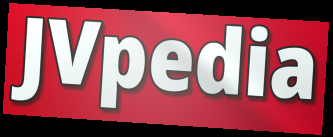
JVpedia